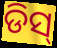
ଡିସ୍